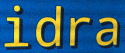
idra